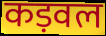
कड़वल